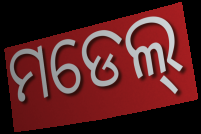
ମଡେଲ୍